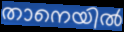
താനെയിൽ